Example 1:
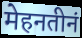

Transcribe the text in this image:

मेहनतीनं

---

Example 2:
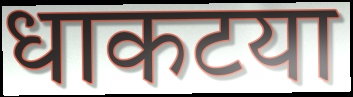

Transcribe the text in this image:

धाकटया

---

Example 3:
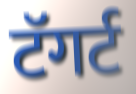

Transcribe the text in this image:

टॅगर्ट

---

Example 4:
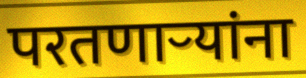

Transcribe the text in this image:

परतणाऱ्यांना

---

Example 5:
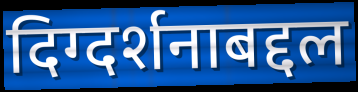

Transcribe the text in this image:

दिग्दर्शनाबद्दल